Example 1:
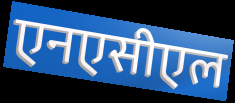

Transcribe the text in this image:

एनएसीएल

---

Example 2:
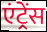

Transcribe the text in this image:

एंट्रेंस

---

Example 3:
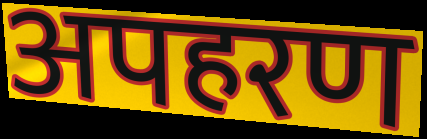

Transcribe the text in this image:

अपहरण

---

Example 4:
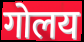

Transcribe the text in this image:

गोलय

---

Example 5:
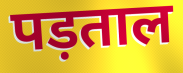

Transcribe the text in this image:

पड़ताल